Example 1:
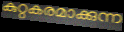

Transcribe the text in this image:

കുറ്റകരമാക്കുന്ന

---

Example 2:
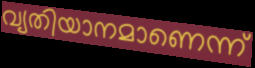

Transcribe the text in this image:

വ്യതിയാനമാണെന്ന്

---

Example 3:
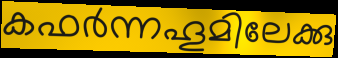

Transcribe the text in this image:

കഫർന്നഹൂമിലേക്കു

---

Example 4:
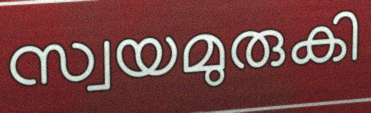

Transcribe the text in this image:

സ്വയമുരുകി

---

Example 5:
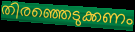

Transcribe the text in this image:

തിരഞ്ഞെടുക്കണം